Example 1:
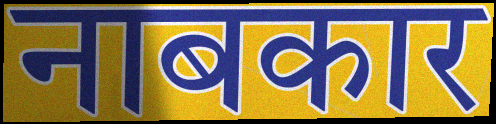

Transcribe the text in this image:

नाबकार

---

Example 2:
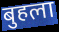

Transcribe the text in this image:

बुहला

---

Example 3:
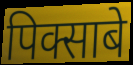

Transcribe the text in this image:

पिक्साबे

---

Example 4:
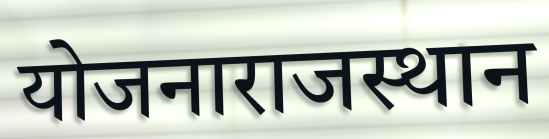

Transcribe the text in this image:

योजनाराजस्थान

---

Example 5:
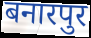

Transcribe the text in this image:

बनारपुर